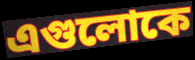
এগুলোকে